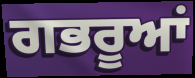
ਗਭਰੂਆਂ